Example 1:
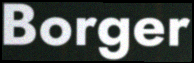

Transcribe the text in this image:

Borger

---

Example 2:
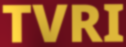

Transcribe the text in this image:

TVRI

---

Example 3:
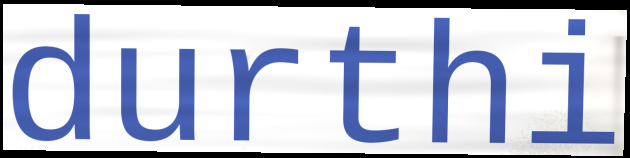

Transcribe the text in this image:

durthi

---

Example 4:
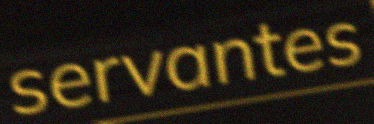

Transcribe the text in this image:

servantes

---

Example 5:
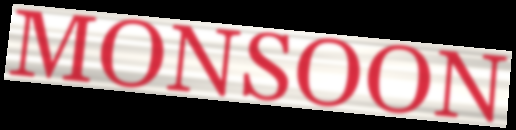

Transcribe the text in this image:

MONSOON